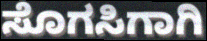
ಸೊಗಸಿಗಾಗಿ